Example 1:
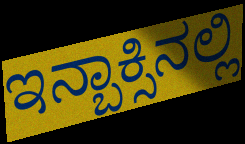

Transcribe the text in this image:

ಇನ್ಬಾಕ್ಸಿನಲ್ಲಿ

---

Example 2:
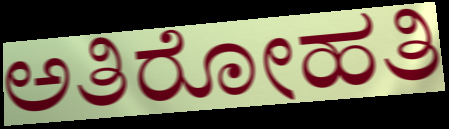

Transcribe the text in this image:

ಅತಿರೋಹತಿ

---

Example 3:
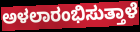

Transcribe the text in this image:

ಅಳಲಾರಂಭಿಸುತ್ತಾಳೆ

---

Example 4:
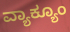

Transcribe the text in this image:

ವ್ಯಾಕ್ಯೂಂ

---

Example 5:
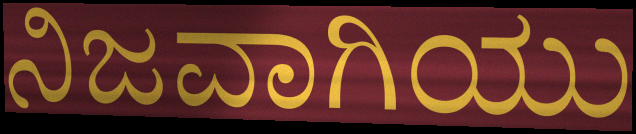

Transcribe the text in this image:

ನಿಜವಾಗಿಯು